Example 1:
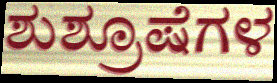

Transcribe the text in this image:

ಶುಶ್ರೂಷೆಗಳ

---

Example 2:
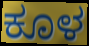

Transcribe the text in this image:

ಕೂಳ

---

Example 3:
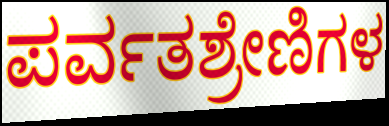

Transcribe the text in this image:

ಪರ್ವತಶ್ರೇಣಿಗಳ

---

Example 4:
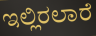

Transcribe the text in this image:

ಇಲ್ಲಿರಲಾರೆ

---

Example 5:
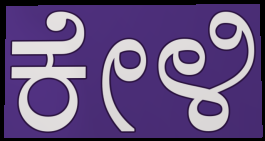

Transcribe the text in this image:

ಕೇಳಿ